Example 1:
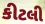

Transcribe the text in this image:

કીટલી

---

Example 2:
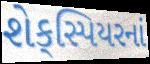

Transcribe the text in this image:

શેક્‌સ્પિયરનાં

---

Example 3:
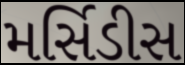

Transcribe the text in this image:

મર્સિડીસ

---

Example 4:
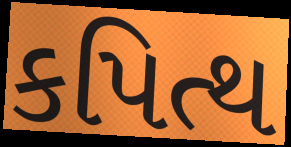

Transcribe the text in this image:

કપિત્થ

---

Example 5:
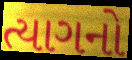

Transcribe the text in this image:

ત્યાગનો